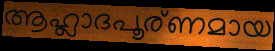
ആഹ്ലാദപൂര്ണമായ